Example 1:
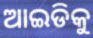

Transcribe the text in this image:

ଆଇଡିକୁ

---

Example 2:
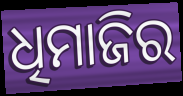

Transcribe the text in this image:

ଧିମାଜିର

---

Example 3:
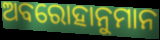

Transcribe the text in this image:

ଅବରୋହାନୁମାନ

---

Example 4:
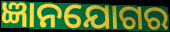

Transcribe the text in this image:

ଜ୍ଞାନଯୋଗର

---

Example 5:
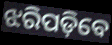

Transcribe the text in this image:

ଝରିପଡ଼ିବେ